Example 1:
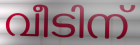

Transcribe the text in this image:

വീടിന്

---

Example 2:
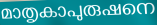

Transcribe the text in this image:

മാതൃകാപുരുഷനെ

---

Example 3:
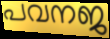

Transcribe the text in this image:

പവനജ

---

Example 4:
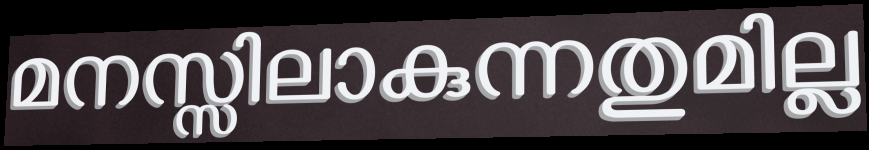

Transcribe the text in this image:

മനസ്സിലാകുന്നതുമില്ല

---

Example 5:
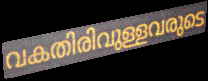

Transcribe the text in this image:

വകതിരിവുള്ളവരുടെ